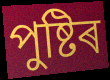
পুষ্টিৰ